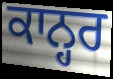
ਕਾਨ੍ਹਰ